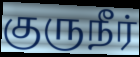
குருநீர்